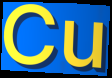
Cu